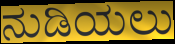
ನುಡಿಯಲು